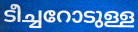
ടീച്ചറോടുള്ള